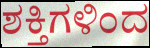
ಶಕ್ತಿಗಳಿಂದ